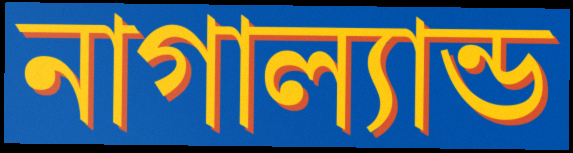
নাগাল্যান্ড